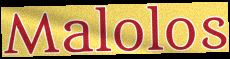
Malolos